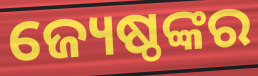
ଜ୍ୟେଷ୍ଠଙ୍କର